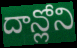
దాన్లోని